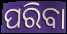
ପରିବା